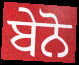
ਬੇਨੋ